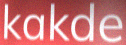
kakde